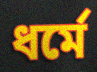
ধর্মে